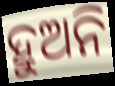
ହୁଅନି